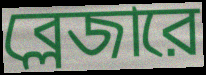
ব্লেজারে